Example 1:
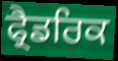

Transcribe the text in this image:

ਫ੍ਰੈਡਰਿਕ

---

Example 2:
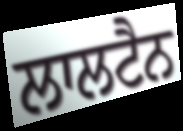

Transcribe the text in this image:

ਲਾਲਟੈਨ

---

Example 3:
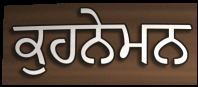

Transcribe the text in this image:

ਕੁਹਨੇਮਨ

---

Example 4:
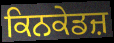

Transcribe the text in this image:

ਕਿਨਕੇਡਜ਼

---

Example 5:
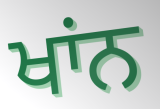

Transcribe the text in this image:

ਖਾਂਨ